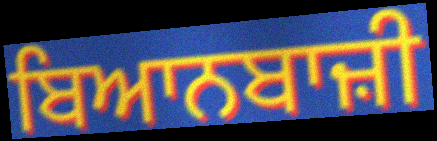
ਬਿਆਨਬਾਜ਼ੀ